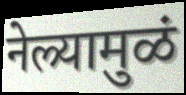
नेल्यामुळं